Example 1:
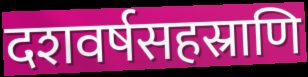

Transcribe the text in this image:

दशवर्षसहस्राणि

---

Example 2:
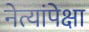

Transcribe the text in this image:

नेत्यांपेक्षा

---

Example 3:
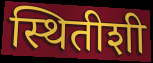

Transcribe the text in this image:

स्थितीशी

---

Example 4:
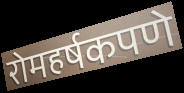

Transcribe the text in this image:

रोमहर्षकपणे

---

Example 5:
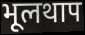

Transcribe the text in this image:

भूलथाप